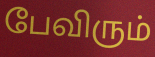
பேவிரும்